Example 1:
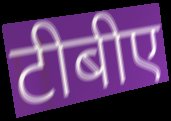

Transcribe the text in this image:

टीबीए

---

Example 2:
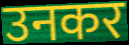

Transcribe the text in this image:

उनकर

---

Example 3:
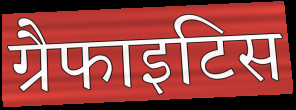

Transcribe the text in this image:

ग्रैफाइटिस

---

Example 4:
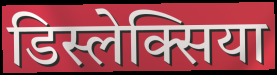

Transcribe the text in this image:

डिस्लेक्सिया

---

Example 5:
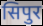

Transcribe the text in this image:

सिपुर